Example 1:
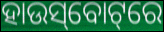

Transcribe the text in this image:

ହାଉସ୍‌ବୋଟ୍‌ରେ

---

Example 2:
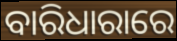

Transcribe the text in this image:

ବାରିଧାରାରେ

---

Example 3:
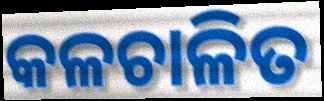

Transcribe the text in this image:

କଳଚାଳିତ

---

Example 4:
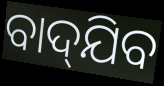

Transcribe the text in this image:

ବାଦ୍‌ଯିବ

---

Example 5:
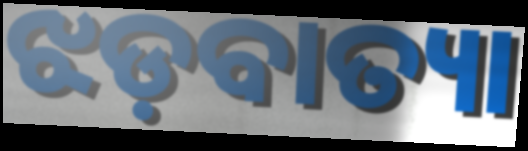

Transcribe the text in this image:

ଝଡ଼ବାତ୍ୟା